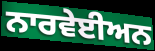
ਨਾਰਵੇਈਅਨ